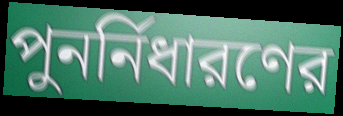
পুনর্নিধারণের